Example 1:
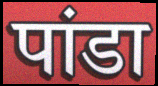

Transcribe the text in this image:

पांडा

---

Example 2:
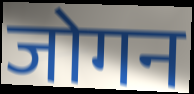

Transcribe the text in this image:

जोगन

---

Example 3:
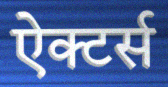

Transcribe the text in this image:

ऐक्टर्स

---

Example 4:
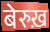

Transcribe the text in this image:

बेरुख़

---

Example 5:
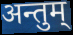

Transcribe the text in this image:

अन्तुम्